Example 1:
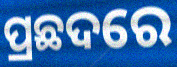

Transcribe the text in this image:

ପ୍ରଛଦରେ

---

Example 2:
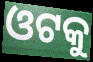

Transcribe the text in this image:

ଓଟକୁ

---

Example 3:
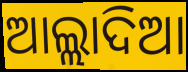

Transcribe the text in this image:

ଆଲ୍ଲାଦିଆ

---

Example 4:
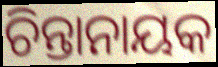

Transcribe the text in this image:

ଚିନ୍ତାନାୟକ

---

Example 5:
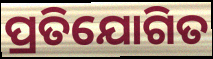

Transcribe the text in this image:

ପ୍ରତିଯୋଗିତ